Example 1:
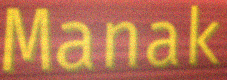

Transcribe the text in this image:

Manak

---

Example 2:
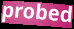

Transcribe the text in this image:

probed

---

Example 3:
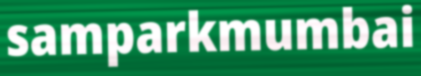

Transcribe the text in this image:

samparkmumbai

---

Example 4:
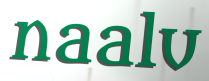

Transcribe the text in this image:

naalu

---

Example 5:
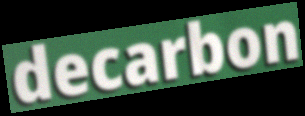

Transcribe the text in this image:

decarbon